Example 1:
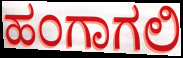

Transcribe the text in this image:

ಹಂಗಾಗಲಿ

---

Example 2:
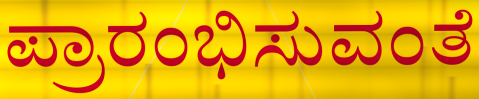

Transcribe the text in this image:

ಪ್ರಾರಂಭಿಸುವಂತೆ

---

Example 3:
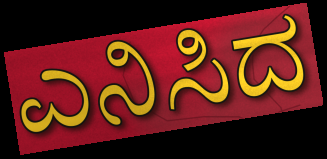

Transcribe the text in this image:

ಎನಿಸಿದ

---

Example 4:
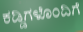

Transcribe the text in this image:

ಕಡ್ಡಿಗಳೊಂದಿಗೆ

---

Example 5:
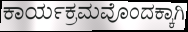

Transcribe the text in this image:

ಕಾರ್ಯಕ್ರಮವೊಂದಕ್ಕಾಗಿ